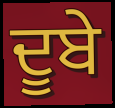
ਦੂਬੇ